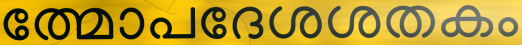
ത്മോപദേശശതകം